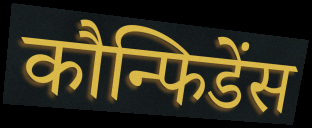
कौन्फिडेंस